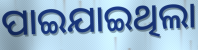
ପାଇଯାଇଥିଲା